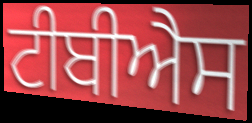
ਟੀਬੀਐਸ